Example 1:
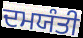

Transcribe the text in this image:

ਦਮਯੰਤੀ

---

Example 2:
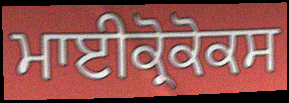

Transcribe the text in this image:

ਮਾਈਕ੍ਰੋਕੋਕਸ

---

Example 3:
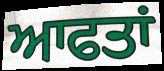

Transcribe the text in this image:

ਆਫਤਾਂ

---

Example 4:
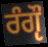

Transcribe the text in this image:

ਰੰਗੵੌ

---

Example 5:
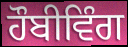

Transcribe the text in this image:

ਹੌਬੀਵਿੰਗ